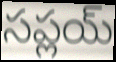
సప్లయ్